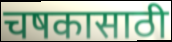
चषकासाठी